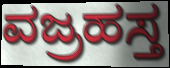
ವಜ್ರಹಸ್ತ